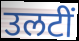
उलटीं